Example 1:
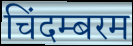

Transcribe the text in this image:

चिंदम्बरम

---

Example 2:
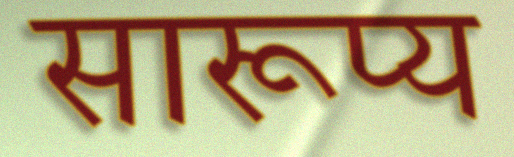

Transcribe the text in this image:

सारूप्य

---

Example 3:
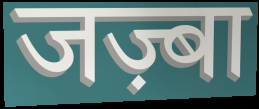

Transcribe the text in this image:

जज़्बा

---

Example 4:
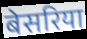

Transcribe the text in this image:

बेसरिया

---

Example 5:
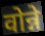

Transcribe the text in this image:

वोन्ने